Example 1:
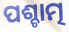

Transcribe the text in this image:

ପଶ୍ଚାତ୍ମ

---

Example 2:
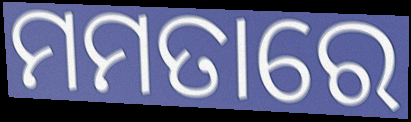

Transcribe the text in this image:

ମମତାରେ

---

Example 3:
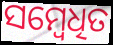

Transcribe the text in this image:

ସମ୍ବେଧିତ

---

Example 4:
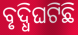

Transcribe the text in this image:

ବୃଦ୍ଧିଘଟିଛି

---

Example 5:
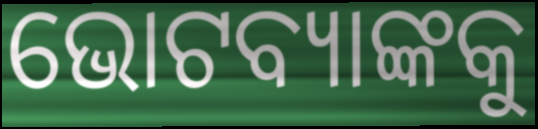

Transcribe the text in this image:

ଭୋଟବ୍ୟାଙ୍କକୁ